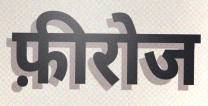
फ़ीरोज